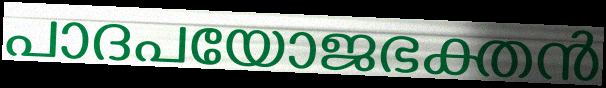
പാദപയോജഭക്തൻ